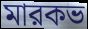
মারকভ